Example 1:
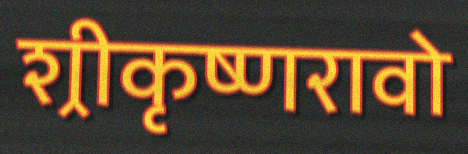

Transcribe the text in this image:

श्रीकृष्णरावो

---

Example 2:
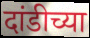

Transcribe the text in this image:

दांडीच्या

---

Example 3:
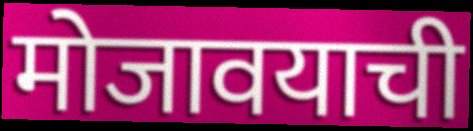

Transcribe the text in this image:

मोजावयाची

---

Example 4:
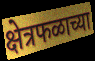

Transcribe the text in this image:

क्षेत्रफळाच्या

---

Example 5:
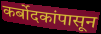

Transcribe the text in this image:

कर्बोदकांपासून